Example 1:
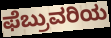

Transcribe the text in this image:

ಫೆಬ್ರುವರಿಯ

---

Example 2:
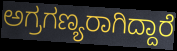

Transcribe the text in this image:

ಅಗ್ರಗಣ್ಯರಾಗಿದ್ದಾರೆ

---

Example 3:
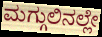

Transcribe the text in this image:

ಮಗ್ಗುಲಿನಲ್ಲೇ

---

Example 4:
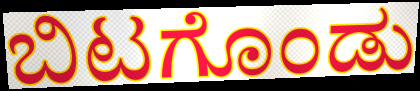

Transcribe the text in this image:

ಬಿಟಗೊಂಡು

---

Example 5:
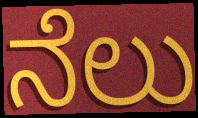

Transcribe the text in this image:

ನೆಲು